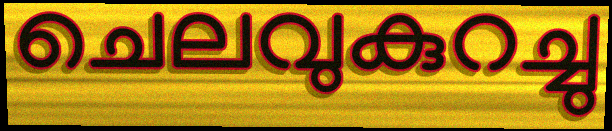
ചെലവുകുറച്ചു